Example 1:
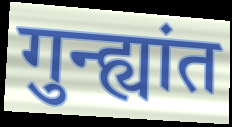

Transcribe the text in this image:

गुन्ह्यांत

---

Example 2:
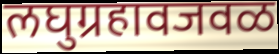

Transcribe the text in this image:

लघुग्रहावजवळ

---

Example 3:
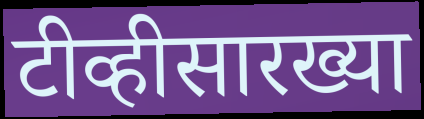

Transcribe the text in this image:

टीव्हीसारख्या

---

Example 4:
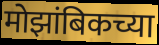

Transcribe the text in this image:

मोझांबिकच्या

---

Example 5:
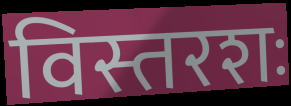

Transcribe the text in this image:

विस्तरशः